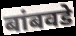
बांबवडे